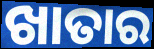
ଖାତାର